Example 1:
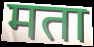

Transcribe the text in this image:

मता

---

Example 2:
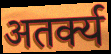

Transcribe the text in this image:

अतर्क्य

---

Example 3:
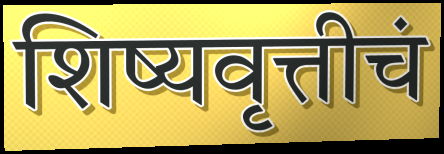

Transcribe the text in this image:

शिष्यवृत्तीचं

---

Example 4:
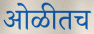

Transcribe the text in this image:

ओळीतच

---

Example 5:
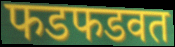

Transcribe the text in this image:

फडफडवत